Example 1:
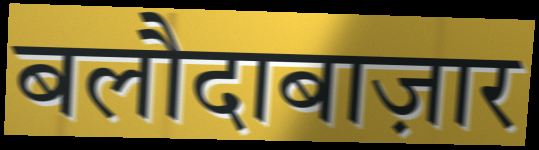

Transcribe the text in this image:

बलौदाबाज़ार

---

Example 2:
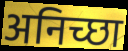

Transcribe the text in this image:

अनिच्छा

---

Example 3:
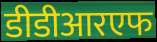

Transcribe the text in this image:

डीडीआरएफ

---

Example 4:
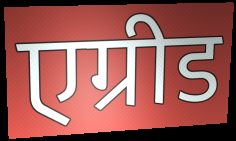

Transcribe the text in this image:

एग्रीड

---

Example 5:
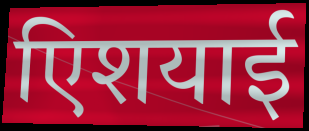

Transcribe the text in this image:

एिशयाई